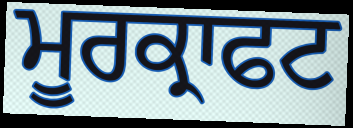
ਮੂਰਕ੍ਰਾਫਟ